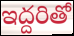
ఇద్దరితో